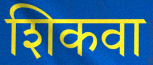
शिकवा